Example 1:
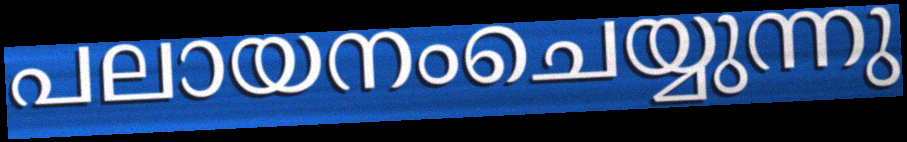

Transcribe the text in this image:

പലായനംചെയ്യുന്നു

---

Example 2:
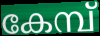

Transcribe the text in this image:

കേമ്പ്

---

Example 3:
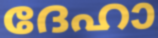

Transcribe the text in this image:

ദേഹാ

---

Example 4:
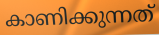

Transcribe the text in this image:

കാണിക്കുന്നത്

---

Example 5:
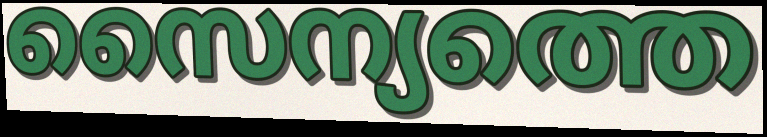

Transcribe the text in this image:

സൈന്യത്തെ